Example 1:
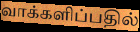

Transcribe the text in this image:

வாக்களிப்பதில்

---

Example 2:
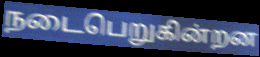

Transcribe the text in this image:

நடைபெறுகின்றன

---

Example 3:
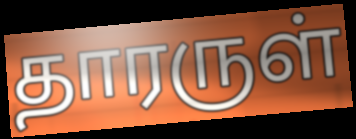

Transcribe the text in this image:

தாரருள்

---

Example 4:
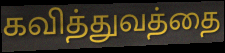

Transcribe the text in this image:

கவித்துவத்தை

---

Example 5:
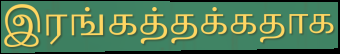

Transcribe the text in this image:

இரங்கத்தக்கதாக